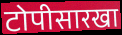
टोपीसारखा